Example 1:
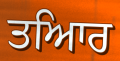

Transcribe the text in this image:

ਤਆਿਰ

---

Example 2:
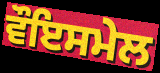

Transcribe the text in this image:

ਵੌਇਸਮੇਲ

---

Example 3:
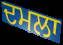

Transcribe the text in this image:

ਦਮਲਾ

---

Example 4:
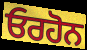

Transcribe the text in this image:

ਓਰਹੋਨ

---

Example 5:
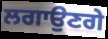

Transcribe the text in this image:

ਲਗਾਉਣਗੇ